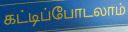
கட்டிப்போடலாம்